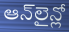
ఆన్‌లైన్లో